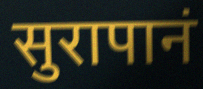
सुरापानं